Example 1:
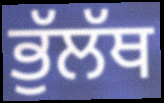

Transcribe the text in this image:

ਭੁੱਲੱਥ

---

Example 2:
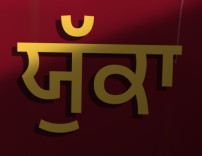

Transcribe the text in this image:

ਯੁੱਕਾ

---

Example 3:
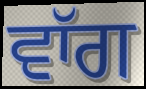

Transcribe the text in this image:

ਵਾੱਗ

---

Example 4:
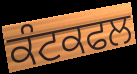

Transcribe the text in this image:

ਕੰਟਕਫਲ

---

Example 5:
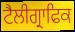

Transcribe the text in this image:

ਟੈਲੀਗ੍ਰਾਫਿਕ